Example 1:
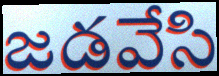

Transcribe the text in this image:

జడవేసి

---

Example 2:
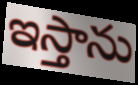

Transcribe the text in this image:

ఇస్తాను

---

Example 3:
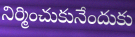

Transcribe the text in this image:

నిర్మించుకునేందుకు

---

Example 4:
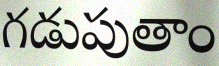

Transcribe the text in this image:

గడుపుతాం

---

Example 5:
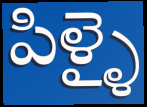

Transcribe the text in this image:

పిళ్ళై